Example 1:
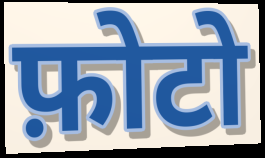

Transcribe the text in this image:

फ़ोटो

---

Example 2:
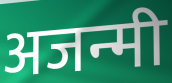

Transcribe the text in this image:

अजन्मी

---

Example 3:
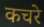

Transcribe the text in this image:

कचरे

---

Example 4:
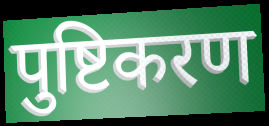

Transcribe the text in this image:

पुष्टिकरण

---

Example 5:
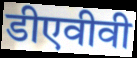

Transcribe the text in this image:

डीएवीवी